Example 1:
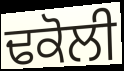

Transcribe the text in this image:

ਢਕੋਲੀ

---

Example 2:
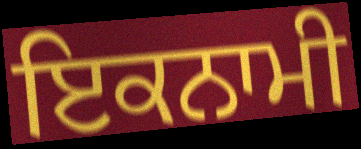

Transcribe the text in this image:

ਇਕਨਾਮੀ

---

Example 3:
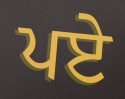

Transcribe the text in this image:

ਪਏ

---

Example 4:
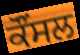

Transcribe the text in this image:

ਕੌਂਸਲ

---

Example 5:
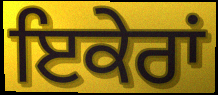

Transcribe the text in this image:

ਇਕੇਰਾਂ